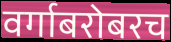
वर्गाबरोबरच